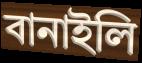
বানাইলি